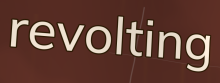
revolting